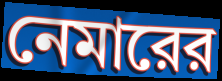
নেমারের